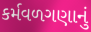
કર્મવળગણાનું